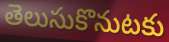
తెలుసుకొనుటకు